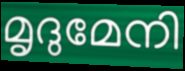
മൃദുമേനി